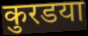
कुरडया